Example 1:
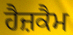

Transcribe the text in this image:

ਹੈਜ਼ਕੈਮ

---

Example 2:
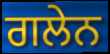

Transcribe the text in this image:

ਗਲੇਨ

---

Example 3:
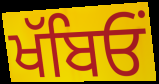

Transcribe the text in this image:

ਖੱਬਿਓਂ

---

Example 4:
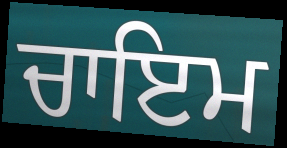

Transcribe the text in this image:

ਚਾਇਮ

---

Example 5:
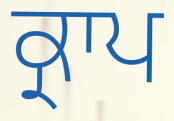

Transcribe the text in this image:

ਕ੍ਰਾਪ